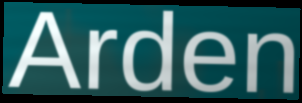
Arden